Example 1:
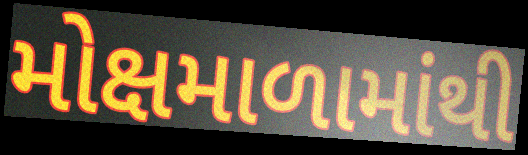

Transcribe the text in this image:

મોક્ષમાળામાંથી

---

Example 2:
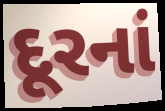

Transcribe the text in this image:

દૂરનાં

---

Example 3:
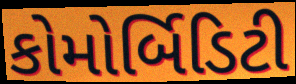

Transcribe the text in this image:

કોમોર્બિડિટી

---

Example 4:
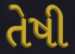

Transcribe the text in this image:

તેષી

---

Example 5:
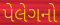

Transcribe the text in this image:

પેલેગનો